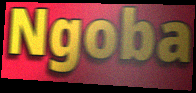
Ngoba